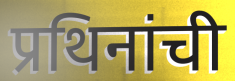
प्रथिनांची